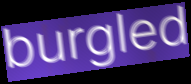
burgled